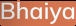
Bhaiya